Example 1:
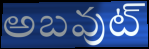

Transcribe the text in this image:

అబవుట్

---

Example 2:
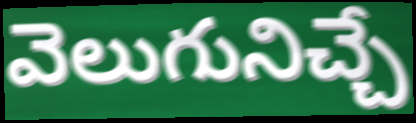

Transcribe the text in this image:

వెలుగునిచ్చే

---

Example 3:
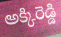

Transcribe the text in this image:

అక్కిరెడ్డి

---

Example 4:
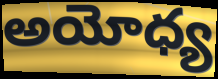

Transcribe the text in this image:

అయోధ్య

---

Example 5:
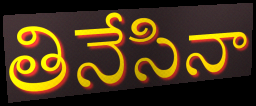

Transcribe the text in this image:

తినేసినా